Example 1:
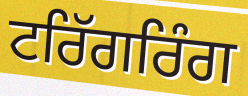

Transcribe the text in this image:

ਟਰਿੱਗਰਿੰਗ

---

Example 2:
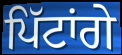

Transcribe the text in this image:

ਪਿੱਟਾਂਗੇ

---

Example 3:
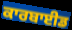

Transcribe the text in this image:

ਕਾਰਬਾਈਡ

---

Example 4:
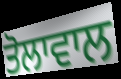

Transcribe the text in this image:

ਤੋਲਾਵਾਲ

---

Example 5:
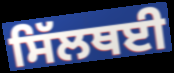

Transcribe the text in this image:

ਸਿੱਲਥਈ